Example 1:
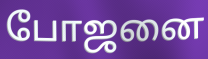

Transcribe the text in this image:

போஜனை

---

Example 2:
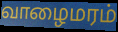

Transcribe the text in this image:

வாழைமரம்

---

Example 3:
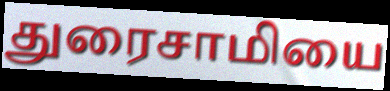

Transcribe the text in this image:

துரைசாமியை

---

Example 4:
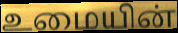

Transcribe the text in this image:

உமையின்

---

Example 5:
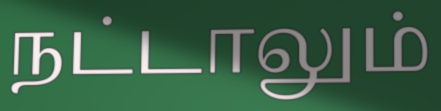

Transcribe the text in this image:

நட்டாலும்